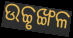
ଉଚ୍ଚୃଙ୍ଖଳ